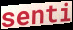
senti